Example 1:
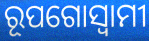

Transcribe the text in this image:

ରୂପଗୋସ୍ୱାମୀ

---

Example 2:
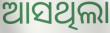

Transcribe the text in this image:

ଆସଥିଲା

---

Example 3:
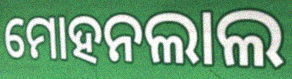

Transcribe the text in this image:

ମୋହନଲାଲ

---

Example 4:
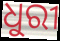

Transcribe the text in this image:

ଧୁରୀ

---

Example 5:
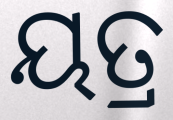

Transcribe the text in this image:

ୟତ୍ର